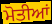
ਮੋਤੀਆਂ